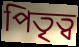
পিতৃত্ব